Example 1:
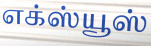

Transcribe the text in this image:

எக்ஸ்யூஸ்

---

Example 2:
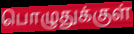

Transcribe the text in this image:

பொழுதுக்குள்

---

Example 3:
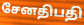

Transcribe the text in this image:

சேனதிபதி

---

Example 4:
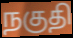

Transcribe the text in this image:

நகுதி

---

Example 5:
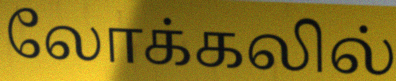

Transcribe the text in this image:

லோக்கலில்